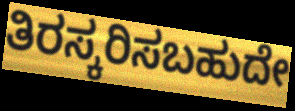
ತಿರಸ್ಕರಿಸಬಹುದೇ